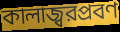
কালাজ্বরপ্রবণ